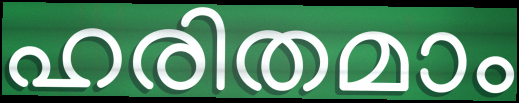
ഹരിതമാം